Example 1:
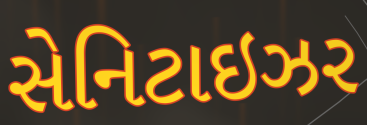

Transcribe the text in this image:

સેનિટાઇઝર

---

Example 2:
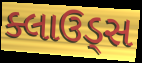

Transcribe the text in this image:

ક્લાઉડ્સ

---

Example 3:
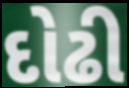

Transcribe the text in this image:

દોઢી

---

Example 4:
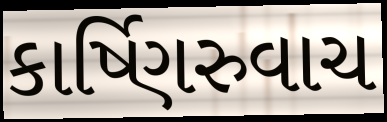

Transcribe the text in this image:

કાર્ષ્ણિરુવાચ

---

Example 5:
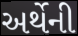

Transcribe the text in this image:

અર્થેની